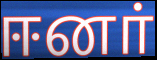
ஈனர்